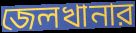
জেলখানার